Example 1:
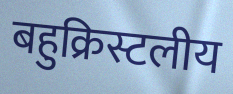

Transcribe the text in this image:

बहुक्रिस्टलीय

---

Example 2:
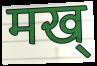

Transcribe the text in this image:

मख्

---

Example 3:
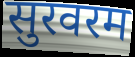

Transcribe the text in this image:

सुरवरम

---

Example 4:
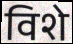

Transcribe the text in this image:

विशे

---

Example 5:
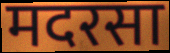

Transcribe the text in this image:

मदरसा